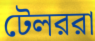
টেলররা